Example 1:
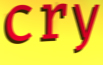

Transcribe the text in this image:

cry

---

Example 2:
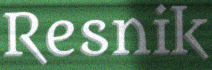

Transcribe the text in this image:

Resnik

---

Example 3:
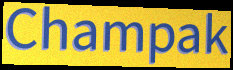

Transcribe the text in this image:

Champak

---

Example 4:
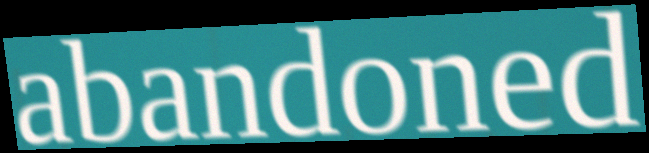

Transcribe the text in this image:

abandoned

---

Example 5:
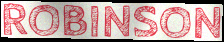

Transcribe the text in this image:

ROBINSON